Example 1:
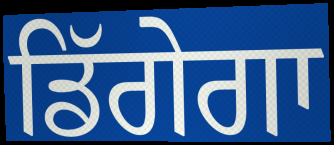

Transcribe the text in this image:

ਡਿੱਗੇਗਾ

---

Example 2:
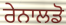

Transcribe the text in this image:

ਰੇਨਾਲਡੋ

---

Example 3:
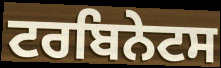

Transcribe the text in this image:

ਟਰਬਿਨੇਟਸ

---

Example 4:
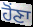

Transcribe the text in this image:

ਹੋਂਣਾ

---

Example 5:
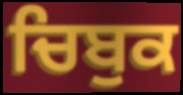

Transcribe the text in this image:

ਚਿਬੁਕ